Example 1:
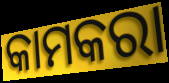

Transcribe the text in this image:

କାମକରା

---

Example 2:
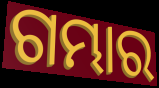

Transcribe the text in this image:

ଗମ୍ଭାର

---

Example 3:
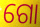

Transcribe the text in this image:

ଗୋ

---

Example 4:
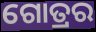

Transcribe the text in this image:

ଗୋତ୍ରର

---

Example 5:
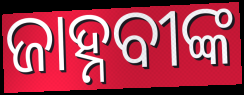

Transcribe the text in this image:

ଜାହ୍ନବୀଙ୍କ